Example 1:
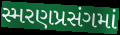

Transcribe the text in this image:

સ્મરણપ્રસંગમાં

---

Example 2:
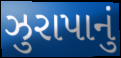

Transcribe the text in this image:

ઝુરાપાનું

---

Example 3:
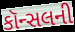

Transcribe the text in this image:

કૉન્સલની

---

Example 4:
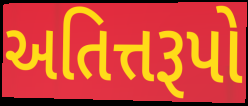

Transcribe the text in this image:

અતિત્તરૂપો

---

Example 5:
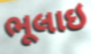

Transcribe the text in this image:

ભૂલાઇ